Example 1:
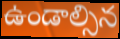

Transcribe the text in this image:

ఉండాల్సిన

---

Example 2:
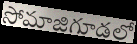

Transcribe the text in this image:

సోమాజిగూడలో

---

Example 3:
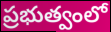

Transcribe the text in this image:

ప్రభుత్వంలో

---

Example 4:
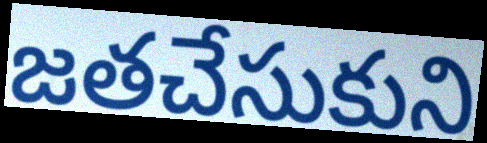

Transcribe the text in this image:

జతచేసుకుని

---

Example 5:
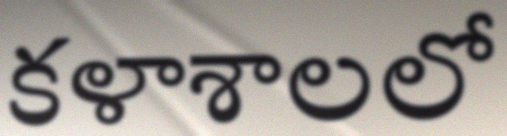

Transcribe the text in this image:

కళాశాలలో